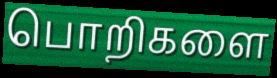
பொறிகளை